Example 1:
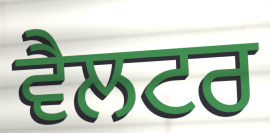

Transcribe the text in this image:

ਵੈਲਟਰ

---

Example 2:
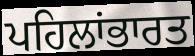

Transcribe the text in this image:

ਪਹਿਲਾਂਭਾਰਤ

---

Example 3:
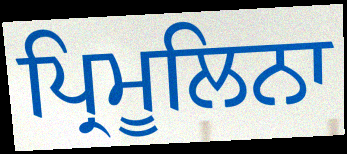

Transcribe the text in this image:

ਪ੍ਰਿਮੂਲਿਨਾ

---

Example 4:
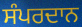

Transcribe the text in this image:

ਸੰਪਰਦਾਨ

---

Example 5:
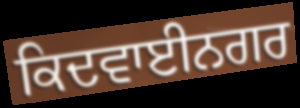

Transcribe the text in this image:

ਕਿਦਵਾਈਨਗਰ